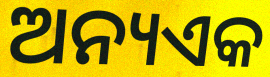
ଅନ୍ୟଏକ